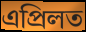
এপ্ৰিলত